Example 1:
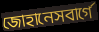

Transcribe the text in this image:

জোহানেসবার্গে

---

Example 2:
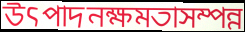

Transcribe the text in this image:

উৎপাদনক্ষমতাসম্পন্ন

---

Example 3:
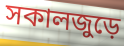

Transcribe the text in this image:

সকালজুড়ে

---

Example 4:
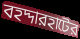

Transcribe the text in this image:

বহদ্দারহাটের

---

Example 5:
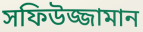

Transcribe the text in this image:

সফিউজ্জামান